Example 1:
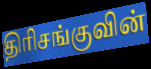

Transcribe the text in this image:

திரிசங்குவின்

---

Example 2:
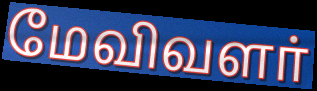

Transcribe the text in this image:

மேவிவளர்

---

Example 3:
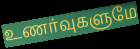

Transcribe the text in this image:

உணர்வுகளுமே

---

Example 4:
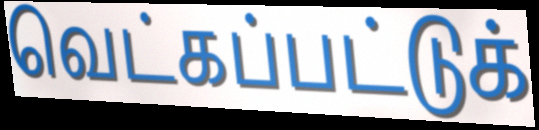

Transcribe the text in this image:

வெட்கப்பட்டுக்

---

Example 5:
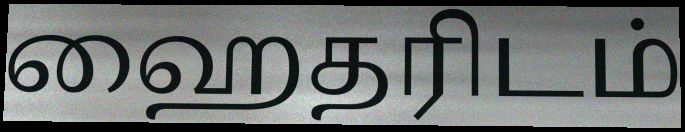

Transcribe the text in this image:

ஹைதரிடம்